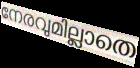
നേരവുമില്ലാതെ